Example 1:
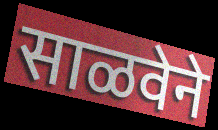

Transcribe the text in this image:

साळवेने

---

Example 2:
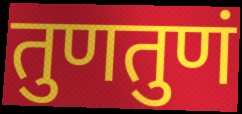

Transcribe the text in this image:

तुणतुणं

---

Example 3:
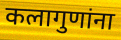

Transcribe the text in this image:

कलागुणांना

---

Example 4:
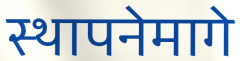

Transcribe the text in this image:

स्थापनेमागे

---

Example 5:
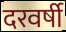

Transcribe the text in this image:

दरवर्षी